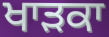
ਖਾੜਕਾ